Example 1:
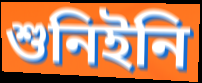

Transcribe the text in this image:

শুনিইনি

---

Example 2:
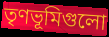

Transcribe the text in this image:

তৃণভূমিগুলো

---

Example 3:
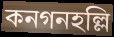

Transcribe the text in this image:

কনগনহল্লি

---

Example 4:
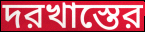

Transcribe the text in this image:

দরখাস্তের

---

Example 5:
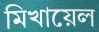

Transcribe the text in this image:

মিখায়েল